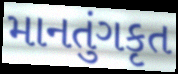
માનતુંગકૃત